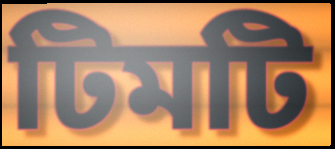
টিমটি